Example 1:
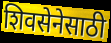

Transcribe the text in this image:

शिवसेनेसाठी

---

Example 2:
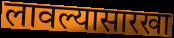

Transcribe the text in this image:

लावल्यासारखा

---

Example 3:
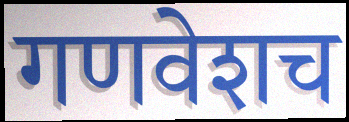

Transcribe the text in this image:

गणवेशच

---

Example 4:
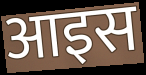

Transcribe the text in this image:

आइस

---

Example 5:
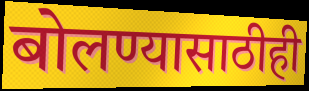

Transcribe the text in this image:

बोलण्यासाठीही